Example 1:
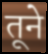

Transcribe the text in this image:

तूने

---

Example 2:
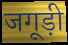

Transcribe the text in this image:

जगूड़ी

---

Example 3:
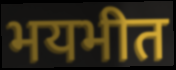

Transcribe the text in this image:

भयभीत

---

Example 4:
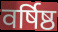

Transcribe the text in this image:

वर्षिष्ठ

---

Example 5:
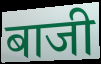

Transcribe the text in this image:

बाजी